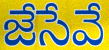
జేసేవే